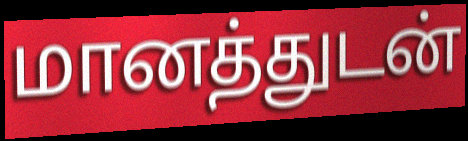
மானத்துடன்